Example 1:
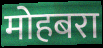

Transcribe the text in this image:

मोहबरा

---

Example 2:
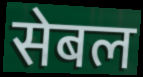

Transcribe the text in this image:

सेबल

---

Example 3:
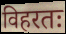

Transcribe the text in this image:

विहरतः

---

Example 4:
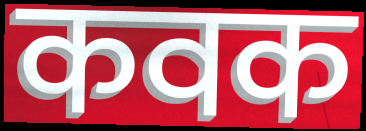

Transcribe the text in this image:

कवक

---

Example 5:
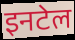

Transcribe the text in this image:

इनटेल